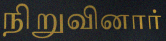
நிறுவினார்